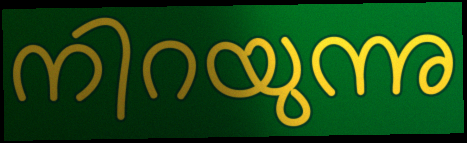
നിറയുന്നു